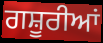
ਗਸ਼ੂਰੀਆਂ